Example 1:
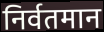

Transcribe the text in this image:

निर्वतमान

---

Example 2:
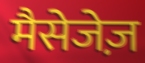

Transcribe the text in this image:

मैसेजेज़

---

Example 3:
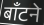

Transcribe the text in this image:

बाँटने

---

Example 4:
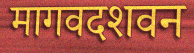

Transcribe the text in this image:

मागवदशवन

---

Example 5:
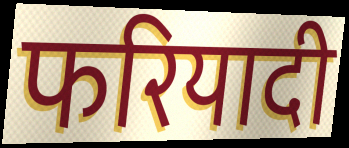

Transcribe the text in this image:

फरियादी